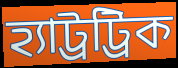
হ্যাট্রট্রিক